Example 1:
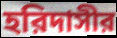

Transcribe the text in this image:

হরিদাসীর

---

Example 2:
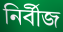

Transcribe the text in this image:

নির্বীজ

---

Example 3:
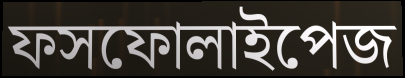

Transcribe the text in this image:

ফসফোলাইপেজ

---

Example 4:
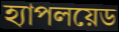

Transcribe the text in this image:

হ্যাপলয়েড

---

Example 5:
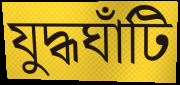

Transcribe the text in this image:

যুদ্ধঘাঁটি